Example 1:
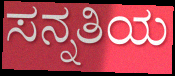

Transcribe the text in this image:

ಸನ್ನತಿಯ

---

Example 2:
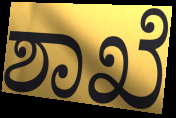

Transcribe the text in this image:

ಶಾಖೆ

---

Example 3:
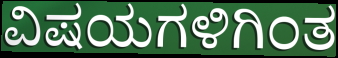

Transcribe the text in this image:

ವಿಷಯಗಳಿಗಿಂತ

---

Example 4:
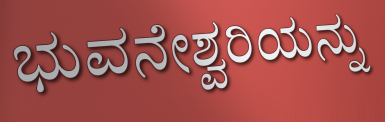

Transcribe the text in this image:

ಭುವನೇಶ್ವರಿಯನ್ನು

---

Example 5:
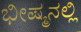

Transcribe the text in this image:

ಭೀಷ್ಮನಲ್ಲಿ